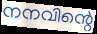
നനവിന്റെ